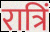
रात्रिं